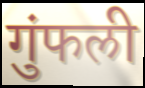
गुंफली